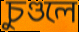
চুণ্ডলে